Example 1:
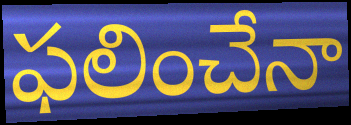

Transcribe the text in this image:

ఫలించేనా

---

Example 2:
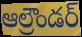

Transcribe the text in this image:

ఆల్రౌండర్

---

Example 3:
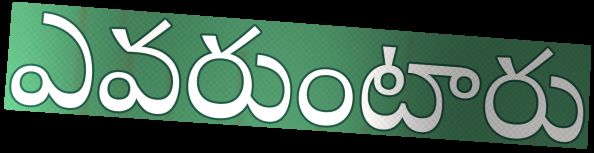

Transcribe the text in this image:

ఎవరుంటారు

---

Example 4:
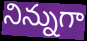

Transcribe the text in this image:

నిన్నుగా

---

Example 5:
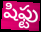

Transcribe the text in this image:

షిఫ్టు